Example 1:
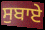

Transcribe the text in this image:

ਸੁਬਾਏ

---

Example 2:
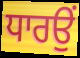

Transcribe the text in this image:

ਧਾਰਉਂ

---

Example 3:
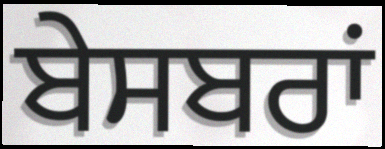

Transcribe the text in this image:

ਬੇਸਬਰਾਂ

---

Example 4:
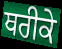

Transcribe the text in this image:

ਥਰੀਕੇ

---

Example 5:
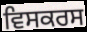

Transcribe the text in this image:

ਵਿਸਕਰਸ